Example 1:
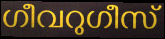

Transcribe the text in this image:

ഗീവറുഗീസ്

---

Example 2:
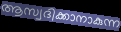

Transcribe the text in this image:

ആസ്വദിക്കാനാകുന്ന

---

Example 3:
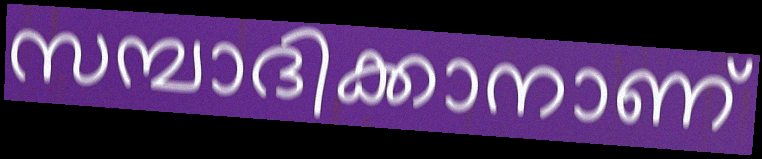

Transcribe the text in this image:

സമ്പാദിക്കാനാണ്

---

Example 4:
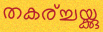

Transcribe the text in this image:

തകര്ച്ചയ്ക്കു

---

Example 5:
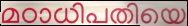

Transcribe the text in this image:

മഠാധിപതിയെ